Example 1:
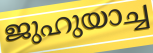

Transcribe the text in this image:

ജുഹുയാച്ച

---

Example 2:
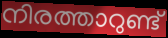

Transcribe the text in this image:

നിരത്താറുണ്ട്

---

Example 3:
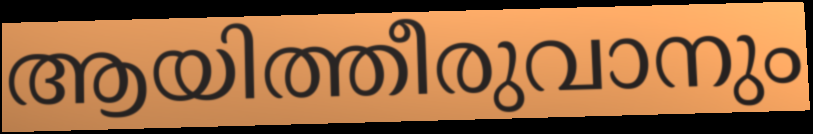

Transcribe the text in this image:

ആയിത്തീരുവാനും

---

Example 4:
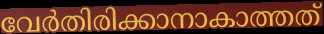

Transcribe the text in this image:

വേർതിരിക്കാനാകാത്തത്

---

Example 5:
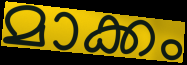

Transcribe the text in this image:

മാക്കം